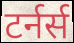
टर्नर्स